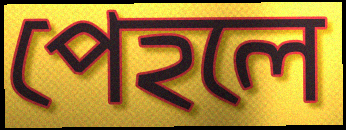
পেহলে